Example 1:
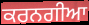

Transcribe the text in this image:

ਕਰਨਗੀਆ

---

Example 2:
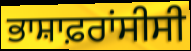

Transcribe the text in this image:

ਭਾਸ਼ਾਫ਼ਰਾਂਸੀਸੀ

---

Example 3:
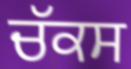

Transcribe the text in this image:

ਚੱਕਸ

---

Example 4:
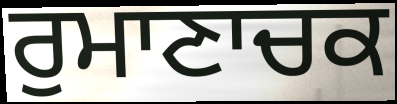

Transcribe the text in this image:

ਰੁਮਾਣਾਚਕ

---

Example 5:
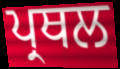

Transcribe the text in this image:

ਪ੍ਰਥਲ